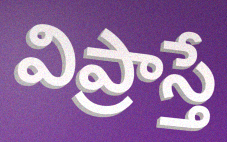
విప్రాస్తే